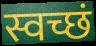
स्वच्छं